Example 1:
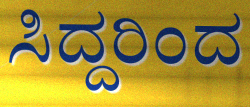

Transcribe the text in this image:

ಸಿದ್ದರಿಂದ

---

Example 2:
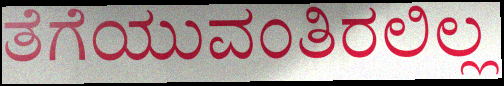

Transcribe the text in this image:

ತೆಗೆಯುವಂತಿರಲಿಲ್ಲ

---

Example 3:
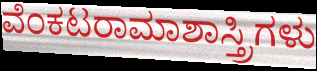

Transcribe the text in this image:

ವೆಂಕಟರಾಮಾಶಾಸ್ತ್ರಿಗಳು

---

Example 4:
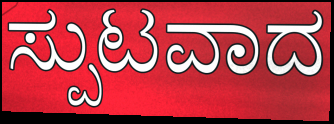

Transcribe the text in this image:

ಸ್ಪುಟವಾದ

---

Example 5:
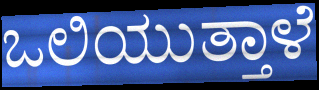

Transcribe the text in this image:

ಒಲಿಯುತ್ತಾಳೆ